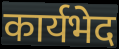
कार्यभेद